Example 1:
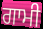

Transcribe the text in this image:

ਗਾਮੀ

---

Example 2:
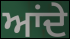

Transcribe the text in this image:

ਆਂਦੇ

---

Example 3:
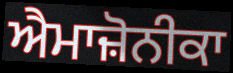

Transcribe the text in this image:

ਐਮਾਜ਼ੋਨੀਕਾ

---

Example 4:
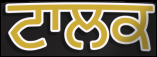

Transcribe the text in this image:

ਟਾਲਕ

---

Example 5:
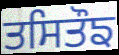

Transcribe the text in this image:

ਤਸਿਤੌਙ